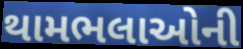
થામભલાઓની